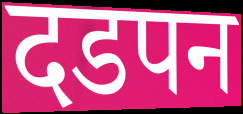
दडपन